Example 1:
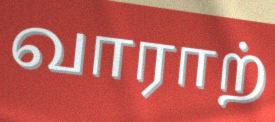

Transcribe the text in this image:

வாராற்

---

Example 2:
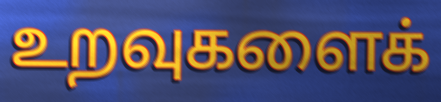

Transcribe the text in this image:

உறவுகளைக்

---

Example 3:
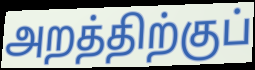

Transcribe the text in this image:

அறத்திற்குப்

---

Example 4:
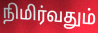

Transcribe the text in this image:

நிமிர்வதும்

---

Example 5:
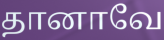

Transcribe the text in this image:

தானாவே